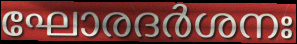
ഘോരദർശനഃ